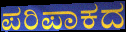
ಪರಿಪಾಕದ